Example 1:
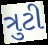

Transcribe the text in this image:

ત્રુટી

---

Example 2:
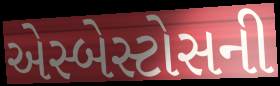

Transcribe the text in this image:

એસ્બેસ્ટોસની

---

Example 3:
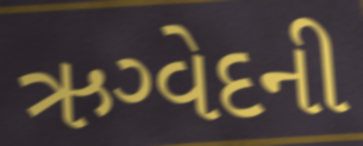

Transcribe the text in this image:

ઋગ્વેદની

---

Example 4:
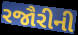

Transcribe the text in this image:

રજૌરીની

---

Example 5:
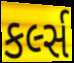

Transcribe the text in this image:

કર્લ્સ